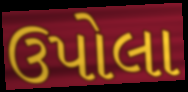
ઉપોલા